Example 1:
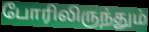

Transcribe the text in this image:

போரிலிருந்தும்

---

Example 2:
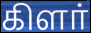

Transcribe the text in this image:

கிளர்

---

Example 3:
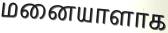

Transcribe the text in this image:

மனையாளாக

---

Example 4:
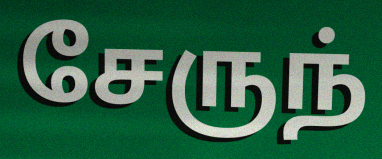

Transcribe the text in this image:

சேருந்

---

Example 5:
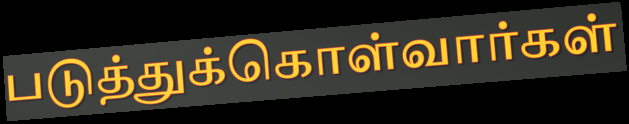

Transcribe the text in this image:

படுத்துக்கொள்வார்கள்